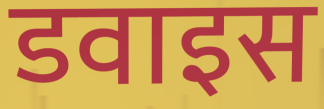
डवाइस